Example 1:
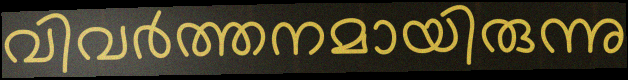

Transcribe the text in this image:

വിവർത്തനമായിരുന്നു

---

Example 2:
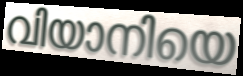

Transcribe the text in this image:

വിയാനിയെ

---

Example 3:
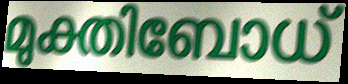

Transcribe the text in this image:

മുക്തിബോധ്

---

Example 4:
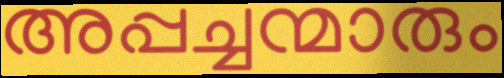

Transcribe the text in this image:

അപ്പച്ചന്മാരും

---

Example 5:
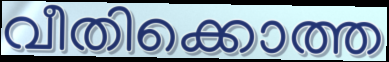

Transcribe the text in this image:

വീതിക്കൊത്ത